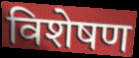
विशेषण